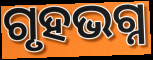
ଗୃହଭଗ୍ନ